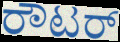
ರೌಟರ್